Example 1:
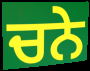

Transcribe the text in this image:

ਚਨੇ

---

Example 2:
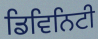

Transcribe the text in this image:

ਡਿਵਿਨਿਟੀ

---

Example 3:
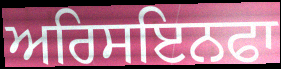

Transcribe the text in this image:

ਅਰਿਸਇਨਫਾ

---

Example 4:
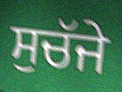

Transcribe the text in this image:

ਸੁਚੱਜੇ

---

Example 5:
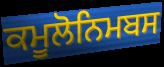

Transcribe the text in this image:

ਕਮੂਲੋਨਿਮਬਸ